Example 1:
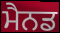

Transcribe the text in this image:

ਮੈਨਡ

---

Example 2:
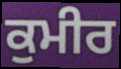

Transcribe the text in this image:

ਕੁਮੀਰ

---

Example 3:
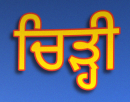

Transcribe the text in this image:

ਚਿੜ੍ਹੀ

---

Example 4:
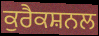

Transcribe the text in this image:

ਕੁਰੈਕਸ਼ਨਲ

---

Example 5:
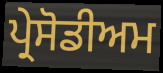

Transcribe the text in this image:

ਪ੍ਰੇਸੋਡੀਅਮ